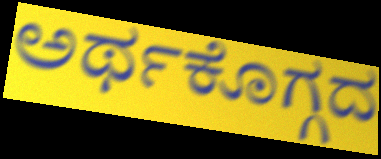
ಅರ್ಥಕೊಗ್ಗದ